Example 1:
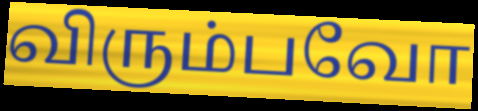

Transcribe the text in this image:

விரும்பவோ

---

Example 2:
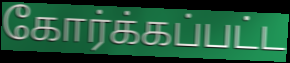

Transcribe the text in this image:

கோர்க்கப்பட்ட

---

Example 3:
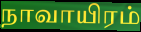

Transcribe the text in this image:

நாவாயிரம்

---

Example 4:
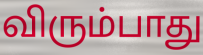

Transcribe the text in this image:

விரும்பாது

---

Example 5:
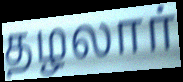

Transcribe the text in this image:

தழலார்